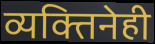
व्यक्तिनेही